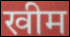
खीम